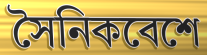
সৈনিকবেশে